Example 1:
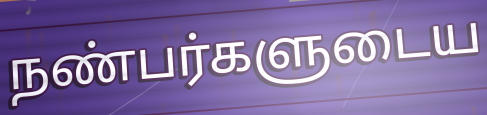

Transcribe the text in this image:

நண்பர்களுடைய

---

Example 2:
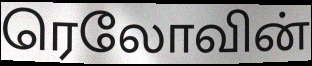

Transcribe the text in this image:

ரெலோவின்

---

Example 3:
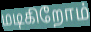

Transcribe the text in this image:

மடிகிறோம்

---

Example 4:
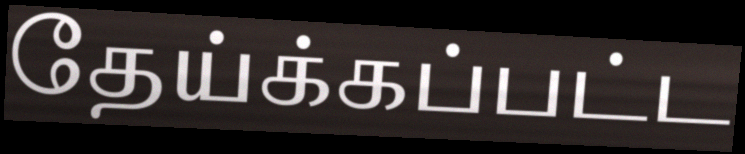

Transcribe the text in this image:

தேய்க்கப்பட்ட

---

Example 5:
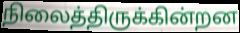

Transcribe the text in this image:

நிலைத்திருக்கின்றன